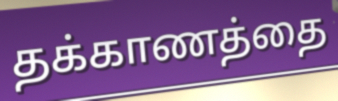
தக்காணத்தை